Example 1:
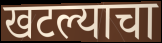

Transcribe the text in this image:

खटल्याचा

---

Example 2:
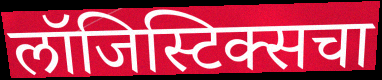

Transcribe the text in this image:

लॉजिस्टिक्सचा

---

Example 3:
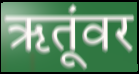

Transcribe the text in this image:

ऋतूंवर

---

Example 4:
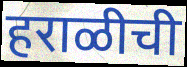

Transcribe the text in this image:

हराळीची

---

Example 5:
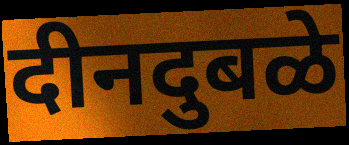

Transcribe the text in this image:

दीनदुबळे